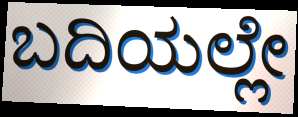
ಬದಿಯಲ್ಲೇ